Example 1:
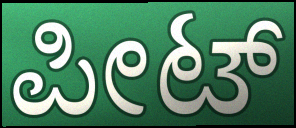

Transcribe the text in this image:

ಪೀಟ್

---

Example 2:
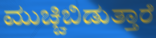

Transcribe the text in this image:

ಮುಚ್ಚಿಬಿಡುತ್ತಾರೆ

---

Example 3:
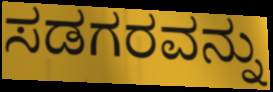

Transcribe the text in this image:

ಸಡಗರವನ್ನು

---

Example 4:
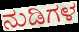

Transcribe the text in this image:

ನುಡಿಗಳ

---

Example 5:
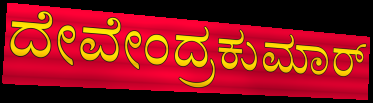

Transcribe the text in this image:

ದೇವೇಂದ್ರಕುಮಾರ್